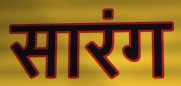
सारंग